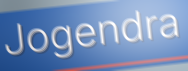
Jogendra